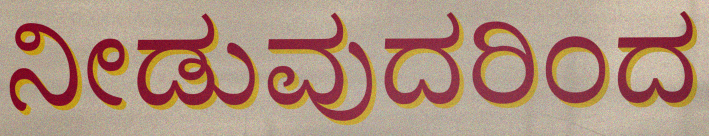
ನೀಡುವುದರಿಂದ